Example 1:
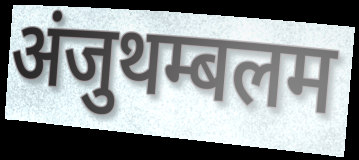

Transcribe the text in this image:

अंजुथम्बलम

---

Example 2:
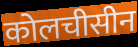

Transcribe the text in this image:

कोलचीसीन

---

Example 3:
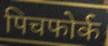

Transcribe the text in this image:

पिचफोर्क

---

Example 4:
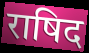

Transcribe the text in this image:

राषिद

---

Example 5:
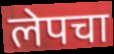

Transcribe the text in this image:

लेपचा